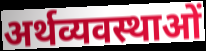
अर्थव्यवस्थाओं